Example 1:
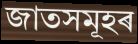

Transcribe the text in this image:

জাতসমূহৰ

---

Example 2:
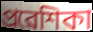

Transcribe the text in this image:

প্ৰৱেশিকা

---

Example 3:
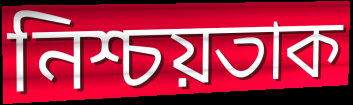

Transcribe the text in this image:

নিশ্চয়তাক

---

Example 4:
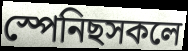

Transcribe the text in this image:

স্পেনিছসকলে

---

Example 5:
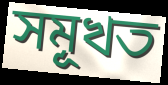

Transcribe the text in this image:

সমূখত